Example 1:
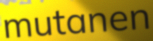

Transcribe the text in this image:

mutanen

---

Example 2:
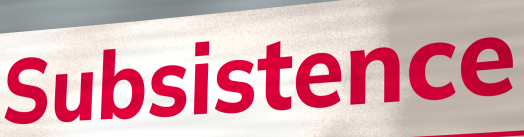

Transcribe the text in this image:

Subsistence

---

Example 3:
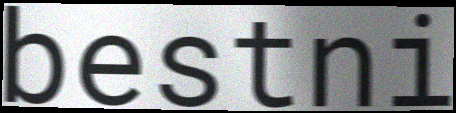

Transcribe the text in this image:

bestni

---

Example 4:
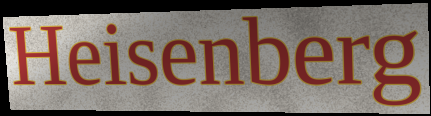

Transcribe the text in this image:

Heisenberg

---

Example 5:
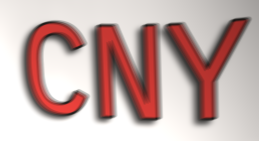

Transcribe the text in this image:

CNY